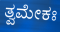
ತ್ವಮೇಕಃ